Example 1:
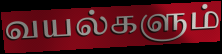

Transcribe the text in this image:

வயல்களும்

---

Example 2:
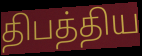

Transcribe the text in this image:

திபத்திய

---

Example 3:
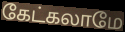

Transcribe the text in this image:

கேட்கலாமே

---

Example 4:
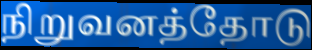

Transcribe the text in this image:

நிறுவனத்தோடு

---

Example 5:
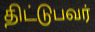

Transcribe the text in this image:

திட்டுபவர்